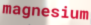
magnesium